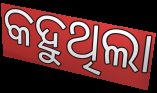
କହୁଥିଲା